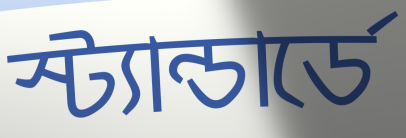
স্ট্যান্ডার্ডে